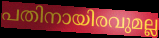
പതിനായിരവുമല്ല